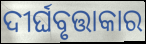
ଦୀର୍ଘବୃତ୍ତାକାର